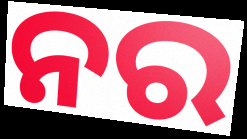
ନର